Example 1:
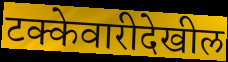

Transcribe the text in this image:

टक्केवारीदेखील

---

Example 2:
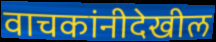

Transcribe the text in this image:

वाचकांनीदेखील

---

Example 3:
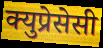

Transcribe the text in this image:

क्युप्रेसेसी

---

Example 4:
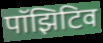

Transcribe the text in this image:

पॉझिटिव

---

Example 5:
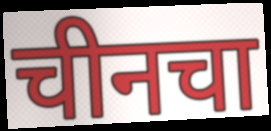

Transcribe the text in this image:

चीनचा